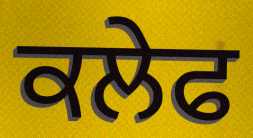
ਕਲੇਫ